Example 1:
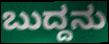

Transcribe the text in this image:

ಬುದ್ದನು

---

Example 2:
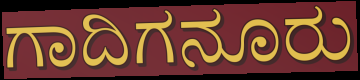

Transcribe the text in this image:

ಗಾದಿಗನೂರು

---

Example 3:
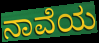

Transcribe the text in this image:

ನಾವೆಯ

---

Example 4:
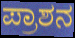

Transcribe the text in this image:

ಪ್ರಾಶನ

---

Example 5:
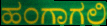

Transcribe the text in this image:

ಹಂಗಾಗಲಿ